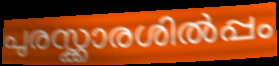
പുരസ്ക്കാരശിൽപ്പം